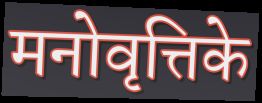
मनोवृत्तिके